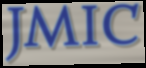
JMIC